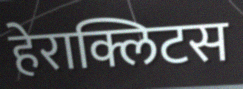
हेराक्लिटस